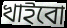
খাইবো